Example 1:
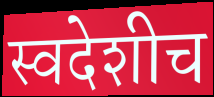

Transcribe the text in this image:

स्वदेशीच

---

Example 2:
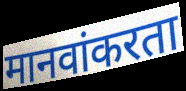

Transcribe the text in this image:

मानवांकरता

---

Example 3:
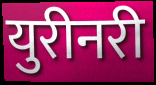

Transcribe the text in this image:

युरीनरी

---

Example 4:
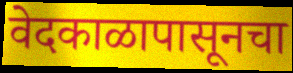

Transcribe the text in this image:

वेदकाळापासूनचा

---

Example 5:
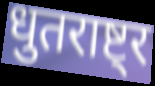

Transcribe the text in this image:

धुतराष्ट्र